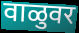
वाळुवर